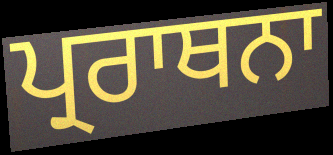
ਪ੍ਰਰਾਥਨਾ